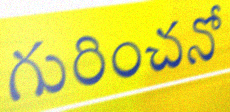
గురించనో